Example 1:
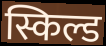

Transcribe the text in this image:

स्किल्ड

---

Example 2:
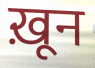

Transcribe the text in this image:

ख़ून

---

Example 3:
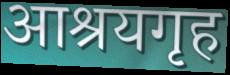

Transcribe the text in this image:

आश्रयगृह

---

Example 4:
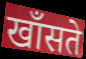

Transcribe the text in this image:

खाँसते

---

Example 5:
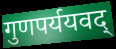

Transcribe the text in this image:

गुणपर्ययवद्